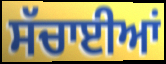
ਸੱਚਾਈਆਂ